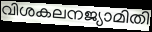
വിശകലനജ്യാമിതി